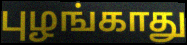
புழங்காது